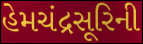
હેમચંદ્રસૂરિની